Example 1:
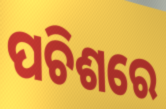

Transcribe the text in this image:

ପଚିଶରେ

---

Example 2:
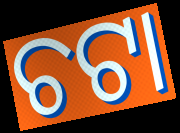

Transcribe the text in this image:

ଚଟା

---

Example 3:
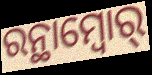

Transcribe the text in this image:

ରନ୍ଥାମ୍ବୋର୍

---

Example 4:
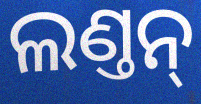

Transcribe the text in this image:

ଲଣ୍ତନ୍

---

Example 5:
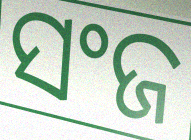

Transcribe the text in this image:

ସଂଜ